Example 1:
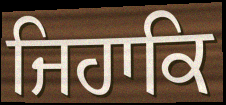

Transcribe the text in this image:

ਜਿਹਾਕਿ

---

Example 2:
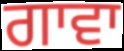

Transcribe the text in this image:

ਗਾਵਾ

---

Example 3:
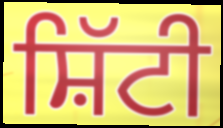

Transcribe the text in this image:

ਸ਼ਿੱਟੀ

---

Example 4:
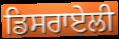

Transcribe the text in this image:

ਡਿਸਰਾਏਲੀ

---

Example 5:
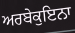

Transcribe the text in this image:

ਅਰਬੇਕੁਇਨਾ